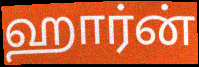
ஹார்ன்